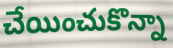
చేయించుకొన్నా